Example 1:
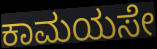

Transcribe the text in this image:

ಕಾಮಯಸೇ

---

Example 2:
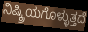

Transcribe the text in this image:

ನಿಷ್ಕ್ರಿಯಗೊಳ್ಳುತ್ತದೆ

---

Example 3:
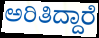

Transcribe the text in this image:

ಅರಿತಿದ್ದಾರೆ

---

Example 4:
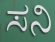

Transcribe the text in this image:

ಸನಿ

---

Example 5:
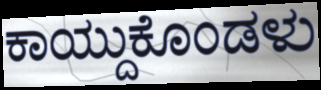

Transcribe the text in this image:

ಕಾಯ್ದುಕೊಂಡಳು